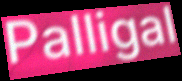
Palligal